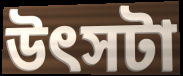
উৎসটা